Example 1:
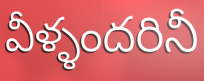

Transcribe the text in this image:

వీళ్ళందరినీ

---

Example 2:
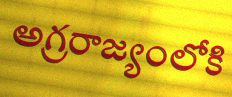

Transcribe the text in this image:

అగ్రరాజ్యంలోకి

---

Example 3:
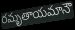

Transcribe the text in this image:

రమృతాయమానౌ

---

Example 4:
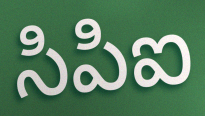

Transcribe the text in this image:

సిపిఐ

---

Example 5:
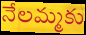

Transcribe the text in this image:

నేలమ్మకు